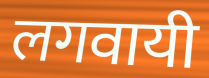
लगवायी